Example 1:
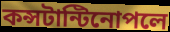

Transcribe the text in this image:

কন্সটান্টিনোপলে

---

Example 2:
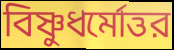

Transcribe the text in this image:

বিষ্ণুধর্মোত্তর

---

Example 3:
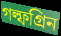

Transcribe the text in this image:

গল্ফগ্রিন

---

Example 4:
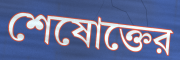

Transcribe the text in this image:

শেষোক্তের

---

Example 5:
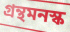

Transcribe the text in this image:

গ্রন্থমনস্ক